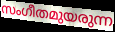
സംഗീതമുയരുന്ന